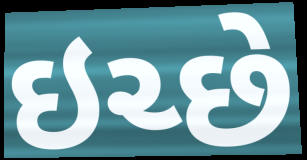
ઇચ્છે